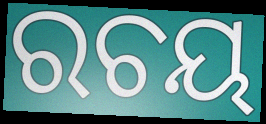
ରଚୟ